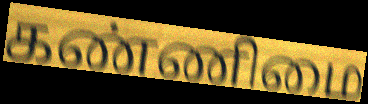
கண்ணிமை